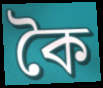
কৈ